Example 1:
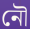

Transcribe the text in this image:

নৌ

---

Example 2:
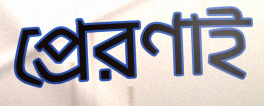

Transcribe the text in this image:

প্রেরণাই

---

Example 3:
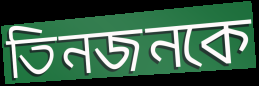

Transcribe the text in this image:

তিনজনকে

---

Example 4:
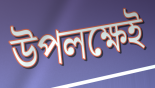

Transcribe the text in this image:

উপলক্ষেই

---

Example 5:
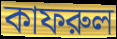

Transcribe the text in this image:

কাফরুল